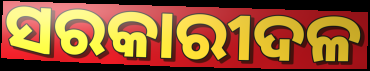
ସରକାରୀଦଳ